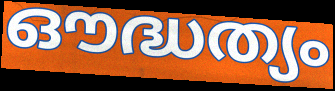
ഔദ്ധത്യം